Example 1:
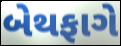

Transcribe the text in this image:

બેથફાગે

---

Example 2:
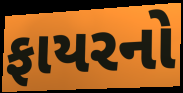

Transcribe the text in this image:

ફાયરનો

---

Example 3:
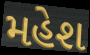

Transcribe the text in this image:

મહેશ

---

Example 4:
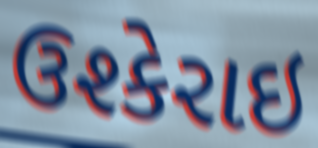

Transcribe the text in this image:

ઉશ્કેરાઇ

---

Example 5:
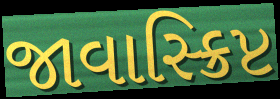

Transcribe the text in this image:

જાવાસ્ક્રિપ્ટ